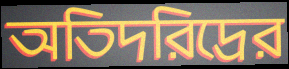
অতিদরিদ্রের